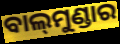
ବାଲ୍‍ମୁଣ୍ଡାର